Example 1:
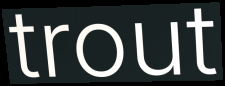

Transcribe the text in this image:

trout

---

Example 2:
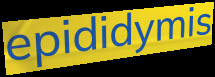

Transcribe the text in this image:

epididymis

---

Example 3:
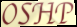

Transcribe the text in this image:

OSHP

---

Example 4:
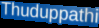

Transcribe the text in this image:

Thuduppathi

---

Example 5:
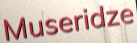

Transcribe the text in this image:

Museridze